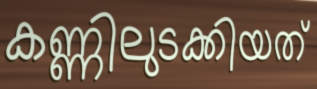
കണ്ണിലുടക്കിയത്